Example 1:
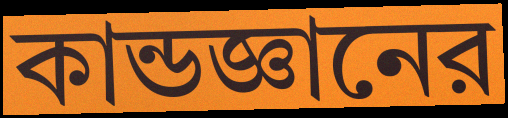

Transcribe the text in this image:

কান্ডজ্ঞানের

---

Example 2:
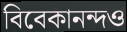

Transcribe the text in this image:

বিবেকানন্দও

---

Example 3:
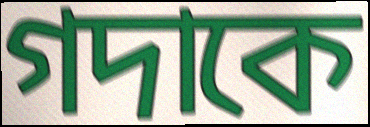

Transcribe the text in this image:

গদাকে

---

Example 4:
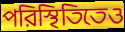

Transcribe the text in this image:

পরিস্থিতিতেও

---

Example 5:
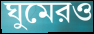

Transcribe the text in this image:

ঘুমেরও